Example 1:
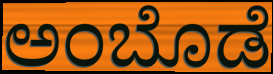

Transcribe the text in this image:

ಅಂಬೊಡೆ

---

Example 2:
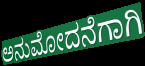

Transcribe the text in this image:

ಅನುಮೋದನೆಗಾಗಿ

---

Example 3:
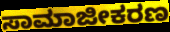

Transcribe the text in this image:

ಸಾಮಾಜೀಕರಣ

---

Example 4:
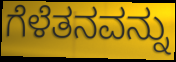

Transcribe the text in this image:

ಗೆಳೆತನವನ್ನು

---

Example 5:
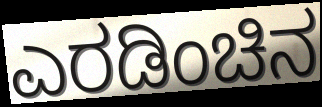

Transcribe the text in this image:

ಎರಡಿಂಚಿನ